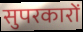
सुपरकारों